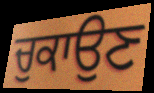
ਚੁਕਾਉਣ